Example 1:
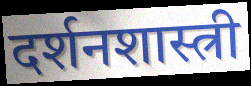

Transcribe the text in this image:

दर्शनशास्त्री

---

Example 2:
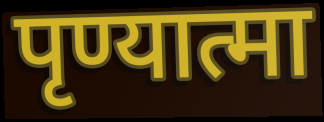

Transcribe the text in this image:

पृण्यात्मा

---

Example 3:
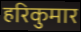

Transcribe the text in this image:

हरिकुमार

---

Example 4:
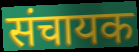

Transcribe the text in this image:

संचायक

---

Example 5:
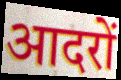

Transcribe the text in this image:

आदरों